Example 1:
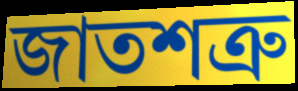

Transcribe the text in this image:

জাতশত্রু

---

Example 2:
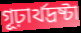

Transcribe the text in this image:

গূঢ়ার্থদ্রষ্টা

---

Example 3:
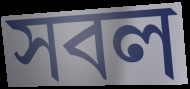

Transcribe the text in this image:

সবল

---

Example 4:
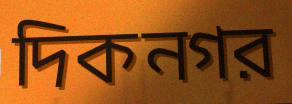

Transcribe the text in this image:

দিকনগর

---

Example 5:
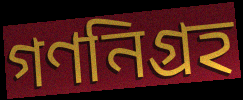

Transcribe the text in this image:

গণনিগ্রহ